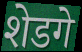
शेडगे